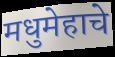
मधुमेहाचे